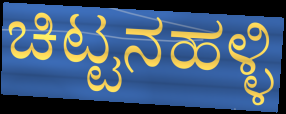
ಚಿಟ್ಟನಹಳ್ಳಿ